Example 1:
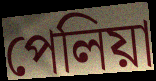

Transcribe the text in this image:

পেলিয়া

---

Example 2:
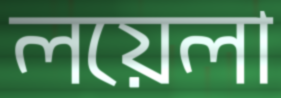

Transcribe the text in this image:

লয়েলা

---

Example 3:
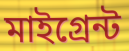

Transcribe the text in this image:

মাইগ্রেন্ট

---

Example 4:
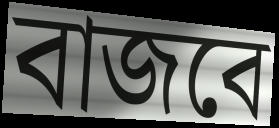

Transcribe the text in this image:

বাজবে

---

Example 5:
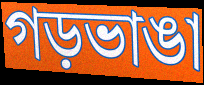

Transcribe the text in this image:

গড়ভাঙা